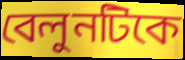
বেলুনটিকে